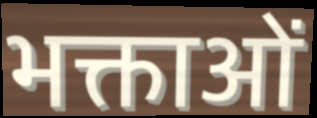
भक्ताओं